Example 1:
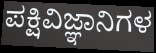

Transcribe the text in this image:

ಪಕ್ಷಿವಿಜ್ಞಾನಿಗಳ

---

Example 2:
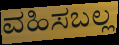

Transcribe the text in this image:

ವಹಿಸಬಲ್ಲ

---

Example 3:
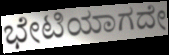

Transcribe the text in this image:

ಭೇಟಿಯಾಗದೇ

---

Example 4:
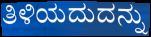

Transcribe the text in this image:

ತಿಳಿಯದುದನ್ನು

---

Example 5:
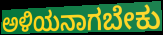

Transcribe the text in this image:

ಅಳಿಯನಾಗಬೇಕು